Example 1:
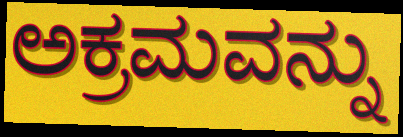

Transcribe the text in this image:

ಅಕ್ರಮವನ್ನು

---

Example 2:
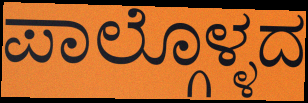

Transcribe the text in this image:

ಪಾಲ್ಗೊಳ್ಳದ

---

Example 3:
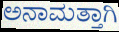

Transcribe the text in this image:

ಅನಾಮತ್ತಾಗಿ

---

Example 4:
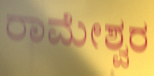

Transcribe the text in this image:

ರಾಮೇಶ್ವರ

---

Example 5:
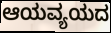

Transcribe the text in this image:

ಆಯವ್ಯಯದ